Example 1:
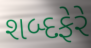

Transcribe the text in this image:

શબ્દફેરે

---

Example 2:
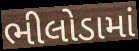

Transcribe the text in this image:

ભીલોડામાં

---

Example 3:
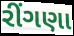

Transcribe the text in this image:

રીંગણા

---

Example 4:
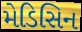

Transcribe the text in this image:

મેડિસિન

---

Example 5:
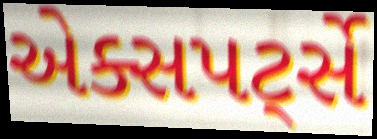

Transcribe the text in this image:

એક્સપર્ટ્સે